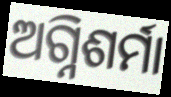
ଅଗ୍ନିଶର୍ମା